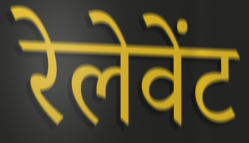
रेलेवेंट